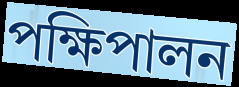
পক্ষিপালন